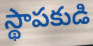
స్థాపకుడి